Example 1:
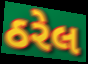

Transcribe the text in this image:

ઠરેલ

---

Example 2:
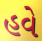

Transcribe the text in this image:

હવે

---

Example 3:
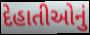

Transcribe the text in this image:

દેહાતીઓનું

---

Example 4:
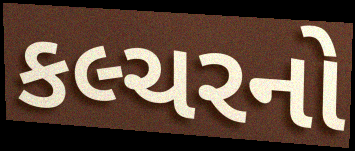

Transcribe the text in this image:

કલ્ચરનો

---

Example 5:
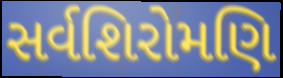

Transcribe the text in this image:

સર્વશિરોમણિ